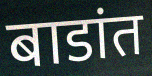
बाडांत